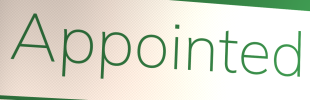
Appointed